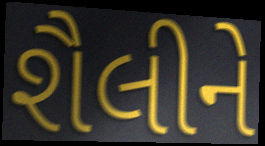
શૈલીને